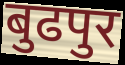
बुढपुर